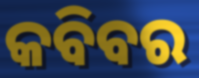
କବିବର